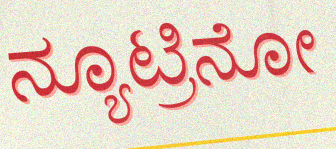
ನ್ಯೂಟ್ರಿನೋ